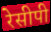
रेसीपी